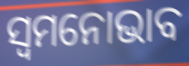
ସ୍ୱମନୋଭାବ